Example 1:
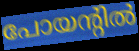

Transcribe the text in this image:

പോയന്റിൽ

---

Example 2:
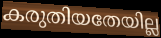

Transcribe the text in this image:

കരുതിയതേയില്ല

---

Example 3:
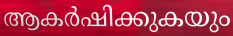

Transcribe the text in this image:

ആകർഷിക്കുകയും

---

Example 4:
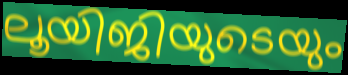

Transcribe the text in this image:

ലൂയിജിയുടെയും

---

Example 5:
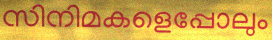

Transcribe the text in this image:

സിനിമകളെപ്പോലും